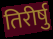
तिरीर्षु